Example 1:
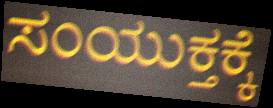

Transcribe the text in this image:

ಸಂಯುಕ್ತಕ್ಕೆ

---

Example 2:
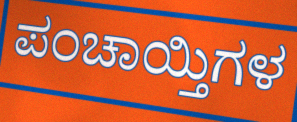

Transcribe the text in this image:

ಪಂಚಾಯ್ತಿಗಳ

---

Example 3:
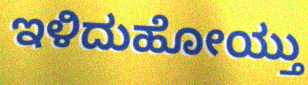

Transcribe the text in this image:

ಇಳಿದುಹೋಯ್ತು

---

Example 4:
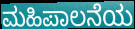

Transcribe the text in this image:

ಮಹಿಪಾಲನೆಯ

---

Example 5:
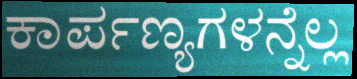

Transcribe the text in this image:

ಕಾರ್ಪಣ್ಯಗಳನ್ನೆಲ್ಲ